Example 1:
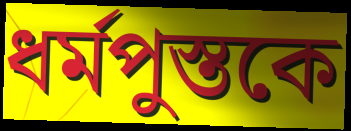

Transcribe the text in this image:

ধর্মপুস্তকে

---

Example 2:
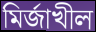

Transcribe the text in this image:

মির্জাখীল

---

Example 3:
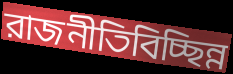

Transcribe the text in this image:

রাজনীতিবিচ্ছিন্ন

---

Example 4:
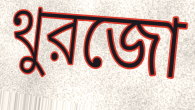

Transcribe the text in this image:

থুরজো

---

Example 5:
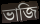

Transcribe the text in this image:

ভাজি